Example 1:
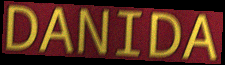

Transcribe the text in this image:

DANIDA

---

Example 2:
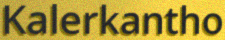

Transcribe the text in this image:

Kalerkantho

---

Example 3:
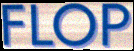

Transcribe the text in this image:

FLOP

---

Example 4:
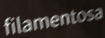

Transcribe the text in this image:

filamentosa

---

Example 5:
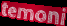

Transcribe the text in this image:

temoni